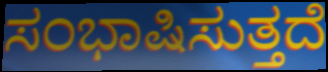
ಸಂಭಾಷಿಸುತ್ತದೆ